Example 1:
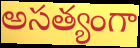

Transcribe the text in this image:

అసత్యంగా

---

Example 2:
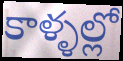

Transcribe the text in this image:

కాళ్ళల్లో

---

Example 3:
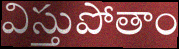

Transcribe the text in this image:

విస్తుపోతాం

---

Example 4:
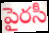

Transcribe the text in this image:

పైరసీ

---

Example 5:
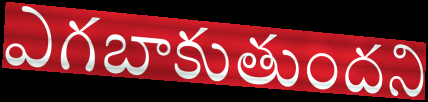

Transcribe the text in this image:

ఎగబాకుతుందని